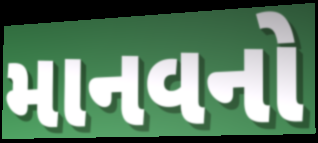
માનવનો